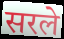
सरले